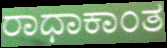
ರಾಧಾಕಾಂತ